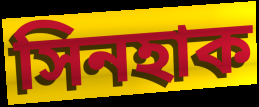
সিনহাক